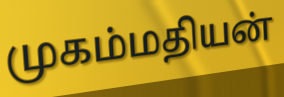
முகம்மதியன்